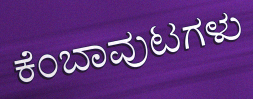
ಕೆಂಬಾವುಟಗಳು